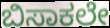
ಬಿಸಾಕಲೇ